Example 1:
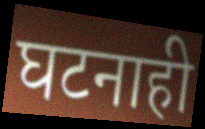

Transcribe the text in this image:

घटनाही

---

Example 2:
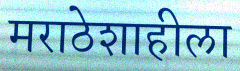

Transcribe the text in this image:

मराठेशाहीला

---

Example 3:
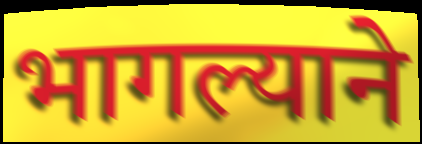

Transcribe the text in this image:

भागल्याने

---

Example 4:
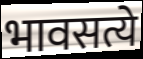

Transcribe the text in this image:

भावसत्ये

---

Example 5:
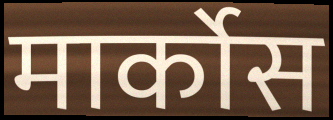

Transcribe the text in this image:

मार्कोस